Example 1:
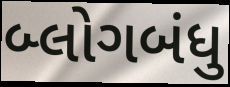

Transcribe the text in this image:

બ્લોગબંધુ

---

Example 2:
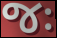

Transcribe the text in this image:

જઃ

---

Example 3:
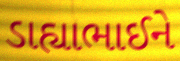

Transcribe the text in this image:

ડાહ્યાભાઈને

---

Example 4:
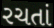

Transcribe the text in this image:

રચતાં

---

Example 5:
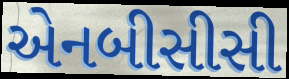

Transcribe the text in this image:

એનબીસીસી